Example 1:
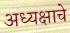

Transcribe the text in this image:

अध्यक्षाचे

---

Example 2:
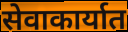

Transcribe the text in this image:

सेवाकार्यात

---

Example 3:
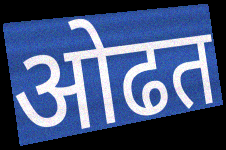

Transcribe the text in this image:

ओढत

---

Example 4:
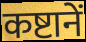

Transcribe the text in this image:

कष्टानें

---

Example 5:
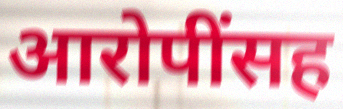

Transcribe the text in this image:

आरोपींसह